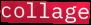
collage